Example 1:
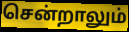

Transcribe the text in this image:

சென்றாலும்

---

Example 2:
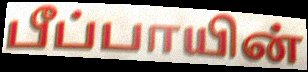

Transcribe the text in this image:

பீப்பாயின்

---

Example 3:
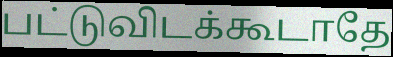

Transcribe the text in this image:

பட்டுவிடக்கூடாதே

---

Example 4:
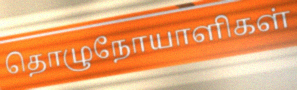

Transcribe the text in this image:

தொழுநோயாளிகள்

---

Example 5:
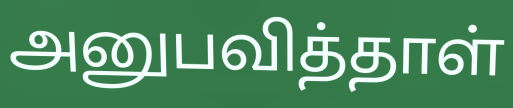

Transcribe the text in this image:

அனுபவித்தாள்